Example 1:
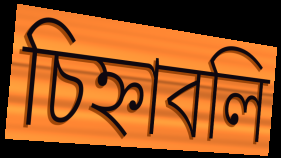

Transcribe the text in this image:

চিহ্নাবলি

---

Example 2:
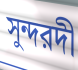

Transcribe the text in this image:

সুন্দরদী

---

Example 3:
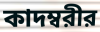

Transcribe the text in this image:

কাদম্বরীর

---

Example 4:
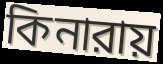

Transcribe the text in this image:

কিনারায়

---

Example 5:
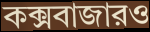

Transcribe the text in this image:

কক্সবাজারও